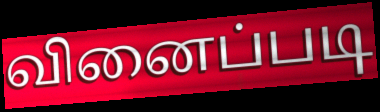
வினைப்படி